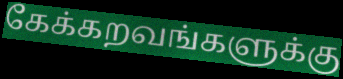
கேக்கறவங்களுக்கு